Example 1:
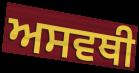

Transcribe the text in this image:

ਅਸਵਥੀ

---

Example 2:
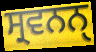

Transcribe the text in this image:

ਸ੍ਰਵਨਨੑ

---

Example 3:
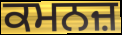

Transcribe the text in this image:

ਕਮਨਜ਼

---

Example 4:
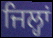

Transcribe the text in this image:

ਜਿਲ੍ਹਾਂ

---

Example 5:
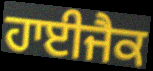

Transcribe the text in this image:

ਹਾਈਜੈਕ